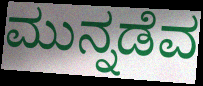
ಮುನ್ನಡೆವ